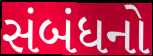
સંબંધનો